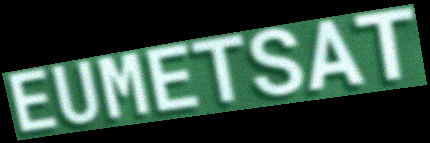
EUMETSAT